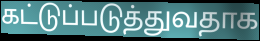
கட்டுப்படுத்துவதாக